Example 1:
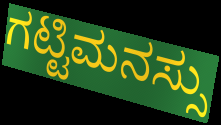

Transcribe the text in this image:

ಗಟ್ಟಿಮನಸ್ಸು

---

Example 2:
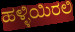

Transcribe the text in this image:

ಹಳ್ಳಿಯಿರಲಿ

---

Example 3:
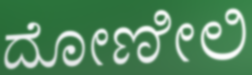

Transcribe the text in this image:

ದೋಣೀಲಿ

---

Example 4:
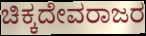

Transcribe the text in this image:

ಚಿಕ್ಕದೇವರಾಜರ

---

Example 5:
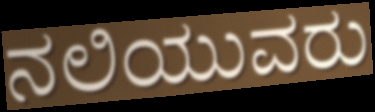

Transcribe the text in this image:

ನಲಿಯುವರು